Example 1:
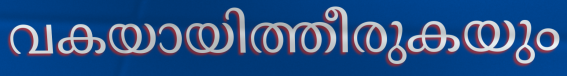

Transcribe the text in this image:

വകയായിത്തീരുകയും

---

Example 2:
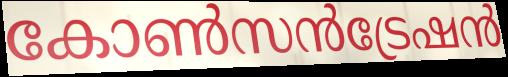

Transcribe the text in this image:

കോൺസൻട്രേഷൻ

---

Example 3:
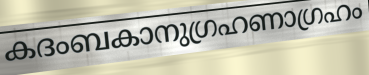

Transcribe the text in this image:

കദംബകാനുഗ്രഹണാഗ്രഹം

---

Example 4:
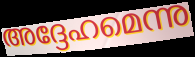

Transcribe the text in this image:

അദ്ദേഹമെന്നു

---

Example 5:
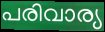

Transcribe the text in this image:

പരിവാര്യ